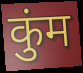
कुंम